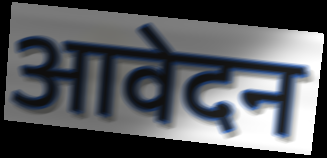
आवेदन